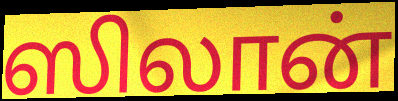
ஸிலான்